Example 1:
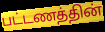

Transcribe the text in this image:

பட்டணத்தின்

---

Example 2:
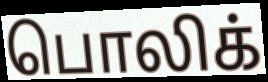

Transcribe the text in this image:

பொலிக்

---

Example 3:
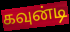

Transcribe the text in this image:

கவுன்டி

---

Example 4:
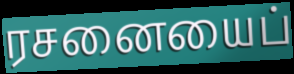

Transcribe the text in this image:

ரசனையைப்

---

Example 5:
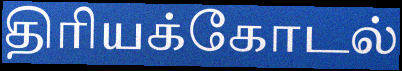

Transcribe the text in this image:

திரியக்கோடல்